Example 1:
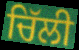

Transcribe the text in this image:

ਚਿੱਲੀ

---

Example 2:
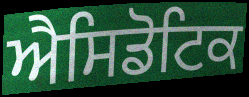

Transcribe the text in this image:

ਐਸਿਡੋਟਿਕ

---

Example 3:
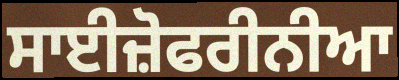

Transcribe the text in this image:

ਸਾਈਜ਼ੋਫਰੀਨੀਆ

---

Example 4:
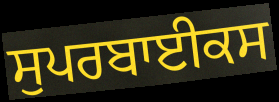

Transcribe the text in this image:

ਸੁਪਰਬਾਈਕਸ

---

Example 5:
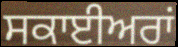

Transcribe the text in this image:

ਸਕਾਈਅਰਾਂ